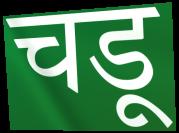
चडू